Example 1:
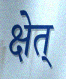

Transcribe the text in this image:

क्षेत्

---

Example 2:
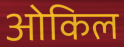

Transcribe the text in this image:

ओकिल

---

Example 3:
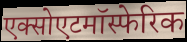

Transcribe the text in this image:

एक्सोएटमॉस्फेरिक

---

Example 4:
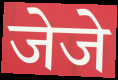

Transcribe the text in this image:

जेजे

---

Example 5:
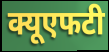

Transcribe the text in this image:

क्यूएफटी